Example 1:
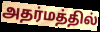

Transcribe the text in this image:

அதர்மத்தில்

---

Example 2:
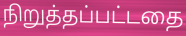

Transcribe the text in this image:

நிறுத்தப்பட்டதை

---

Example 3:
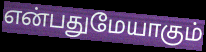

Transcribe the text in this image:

என்பதுமேயாகும்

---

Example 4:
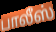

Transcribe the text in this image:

பாலீஸ்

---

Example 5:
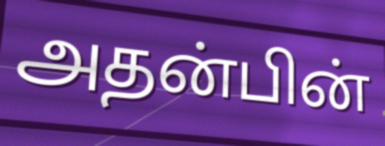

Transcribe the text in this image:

அதன்பின்